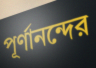
পূর্ণানন্দের